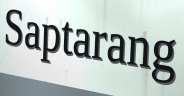
Saptarang